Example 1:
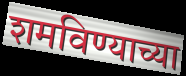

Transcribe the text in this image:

शमविण्याच्या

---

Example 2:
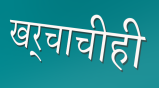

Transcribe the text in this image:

खर्चाचीही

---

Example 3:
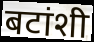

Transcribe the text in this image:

बटांशी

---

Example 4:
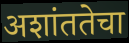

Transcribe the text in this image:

अशांततेचा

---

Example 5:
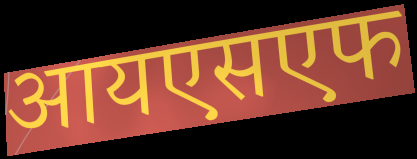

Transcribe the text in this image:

आयएसएफ